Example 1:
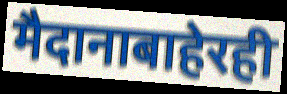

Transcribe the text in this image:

मैदानाबाहेरही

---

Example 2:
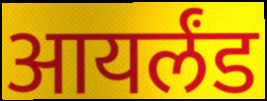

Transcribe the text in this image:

आयर्लंड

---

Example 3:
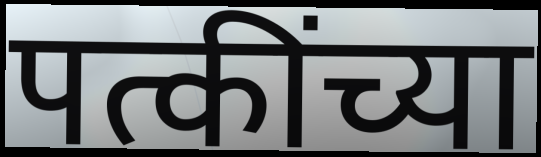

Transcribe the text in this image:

पत्कींच्या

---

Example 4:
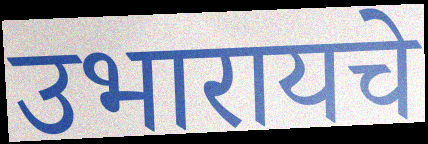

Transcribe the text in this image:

उभारायचे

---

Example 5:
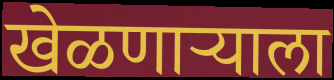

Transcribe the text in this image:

खेळणाऱ्याला